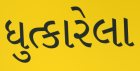
ધુત્કારેલા